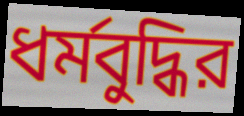
ধর্মবুদ্ধির